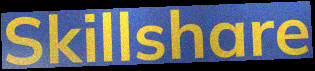
Skillshare